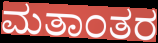
ಮತಾಂತರ